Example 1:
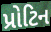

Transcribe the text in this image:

પ્રોટિન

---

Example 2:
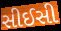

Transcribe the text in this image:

સીઈસી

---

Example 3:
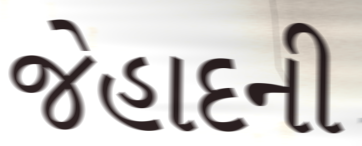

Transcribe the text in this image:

જેહાદની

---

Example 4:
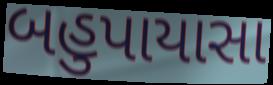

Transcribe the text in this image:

બહુપાયાસા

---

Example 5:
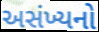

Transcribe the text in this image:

અસંખ્યનો